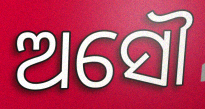
ଅସୌ